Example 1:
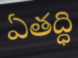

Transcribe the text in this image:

ఏతద్ధి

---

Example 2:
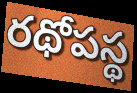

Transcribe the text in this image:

రథోపస్థ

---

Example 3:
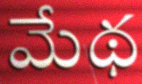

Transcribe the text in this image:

మేథ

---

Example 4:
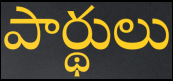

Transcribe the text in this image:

పార్థులు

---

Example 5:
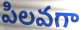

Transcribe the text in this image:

పిలవగా